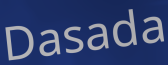
Dasada